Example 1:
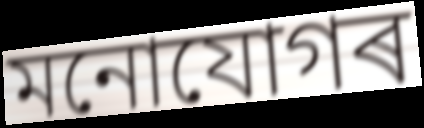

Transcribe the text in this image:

মনোযোগৰ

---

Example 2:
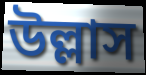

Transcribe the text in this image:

উল্লাস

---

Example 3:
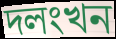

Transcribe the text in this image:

দলংখন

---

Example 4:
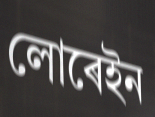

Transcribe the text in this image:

লোৰেইন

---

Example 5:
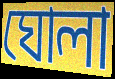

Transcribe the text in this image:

ঘোলা